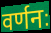
वर्णनः